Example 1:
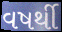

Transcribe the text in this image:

વષર્થી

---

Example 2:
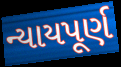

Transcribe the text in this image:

ન્યાયપૂર્ણ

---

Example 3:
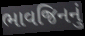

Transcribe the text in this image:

ભાવજિનનું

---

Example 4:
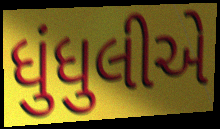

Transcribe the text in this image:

ધુંધુલીએ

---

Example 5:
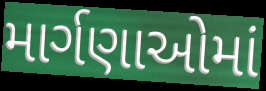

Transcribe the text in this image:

માર્ગણાઓમાં